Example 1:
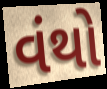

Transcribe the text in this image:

વંથો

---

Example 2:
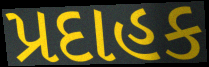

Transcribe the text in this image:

પ્રદાહક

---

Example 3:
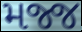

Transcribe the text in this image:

મજ્જ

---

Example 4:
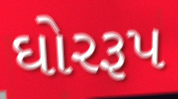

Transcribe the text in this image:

ઘોરરૂપ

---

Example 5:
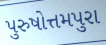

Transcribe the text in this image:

પુરુષોત્તમપુરા